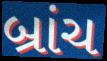
બ્રાંચ